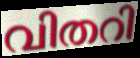
വിതറി